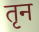
तृन